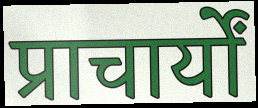
प्राचार्यों